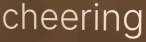
cheering